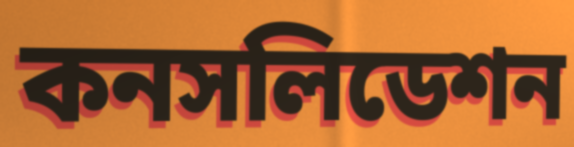
কনসলিডেশন